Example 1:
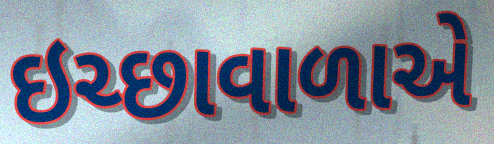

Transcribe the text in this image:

ઇચ્છાવાળાએ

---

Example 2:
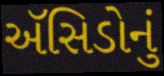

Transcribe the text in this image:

ઍસિડોનું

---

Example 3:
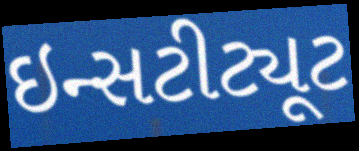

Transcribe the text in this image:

ઇન્સટીટ્યૂટ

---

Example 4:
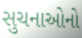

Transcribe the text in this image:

સુચનાઓનો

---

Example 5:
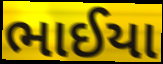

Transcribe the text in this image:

ભાઈયા